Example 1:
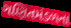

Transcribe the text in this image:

ગણિતમંડળના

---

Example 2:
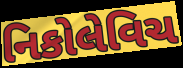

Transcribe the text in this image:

નિકોલેવિચ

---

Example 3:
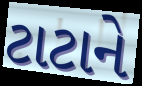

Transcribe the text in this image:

ટાટાને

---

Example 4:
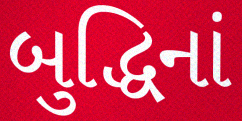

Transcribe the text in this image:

બુદ્ધિનાં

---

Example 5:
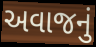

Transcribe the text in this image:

અવાજનું